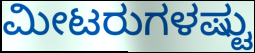
ಮೀಟರುಗಳಷ್ಟು